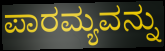
ಪಾರಮ್ಯವನ್ನು